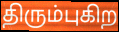
திரும்புகிற